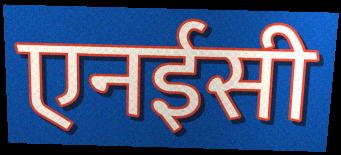
एनईसी